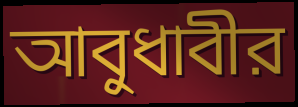
আবুধাবীর